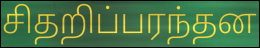
சிதறிப்பரந்தன